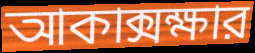
আকাক্সক্ষার